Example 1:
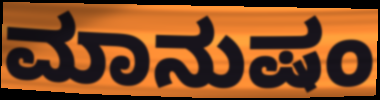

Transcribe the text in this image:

ಮಾನುಷಂ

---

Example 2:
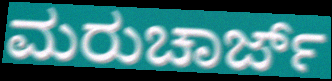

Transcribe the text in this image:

ಮರುಚಾರ್ಜ್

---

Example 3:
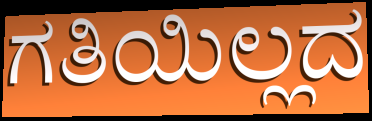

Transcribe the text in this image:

ಗತಿಯಿಲ್ಲದ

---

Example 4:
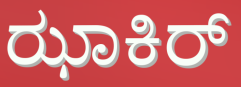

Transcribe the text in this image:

ಝಾಕಿರ್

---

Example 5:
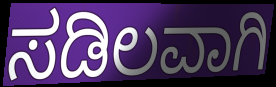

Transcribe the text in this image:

ಸಡಿಲವಾಗಿ